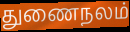
துணைநலம்